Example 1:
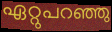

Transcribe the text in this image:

ഏറ്റുപറഞ്ഞു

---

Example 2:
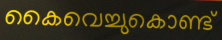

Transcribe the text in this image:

കൈവെച്ചുകൊണ്ട്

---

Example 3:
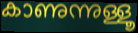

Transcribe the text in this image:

കാണുന്നുള്ളൂ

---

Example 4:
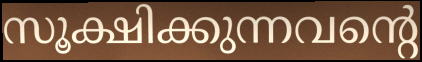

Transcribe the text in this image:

സൂക്ഷിക്കുന്നവന്റെ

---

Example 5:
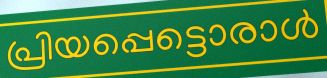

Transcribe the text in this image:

പ്രിയപ്പെട്ടൊരാൾ